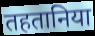
तहतानिया